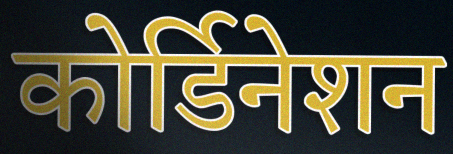
कोर्डिनेशन